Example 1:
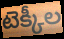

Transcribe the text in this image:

టెక్కీల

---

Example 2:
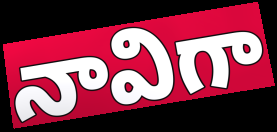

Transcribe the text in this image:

నావిగా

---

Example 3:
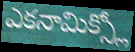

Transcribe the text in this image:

ఎకనామిక్స్లో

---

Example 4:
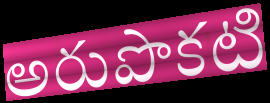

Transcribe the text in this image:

అరుపొకటి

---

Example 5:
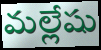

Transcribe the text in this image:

మల్లేషు